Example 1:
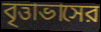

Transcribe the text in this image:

বৃত্তাভাসের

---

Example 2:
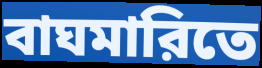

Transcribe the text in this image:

বাঘমারিতে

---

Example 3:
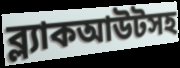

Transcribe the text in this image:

ব্ল্যাকআউটসহ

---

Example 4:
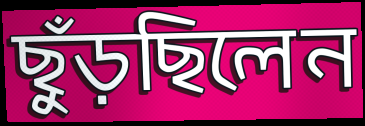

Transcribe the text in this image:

ছুঁড়ছিলেন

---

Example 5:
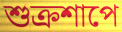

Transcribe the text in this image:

শুক্রশাপে